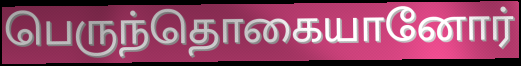
பெருந்தொகையானோர்